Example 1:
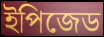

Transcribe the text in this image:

ইপিজেড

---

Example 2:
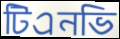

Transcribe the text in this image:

টিএনভি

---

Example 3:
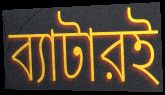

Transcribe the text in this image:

ব্যাটারই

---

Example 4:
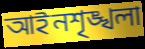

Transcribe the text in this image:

আইনশৃঙ্খলা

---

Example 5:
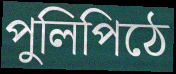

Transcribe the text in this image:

পুলিপিঠে